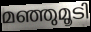
മഞ്ഞുമൂടി